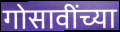
गोसावींच्या